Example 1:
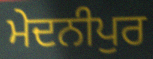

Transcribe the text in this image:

ਮੇਦਨੀਪੁਰ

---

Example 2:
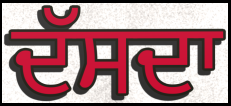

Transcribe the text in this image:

ਦੱਸਦਾ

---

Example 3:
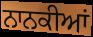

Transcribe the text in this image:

ਨਾਨਕੀਆਂ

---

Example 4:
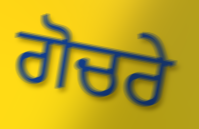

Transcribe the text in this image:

ਗੋਚਰੇ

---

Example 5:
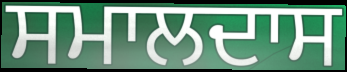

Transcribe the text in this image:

ਸਮਾਲਦਾਸ